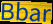
Bbar